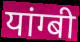
यांग्बी